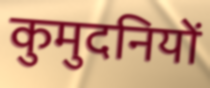
कुमुदनियों